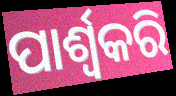
ପାର୍ଶ୍ଵକରି